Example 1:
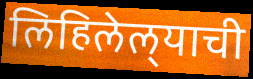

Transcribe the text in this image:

लिहिलेल्याची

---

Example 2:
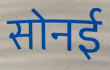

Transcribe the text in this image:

सोनई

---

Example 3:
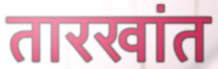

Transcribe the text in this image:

तारखांत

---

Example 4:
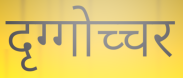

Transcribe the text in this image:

दृग्गोच्चर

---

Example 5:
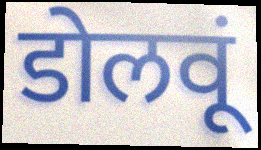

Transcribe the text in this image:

डोलवूं